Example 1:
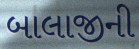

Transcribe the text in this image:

બાલાજીની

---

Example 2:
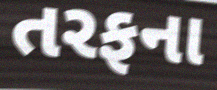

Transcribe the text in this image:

તરફના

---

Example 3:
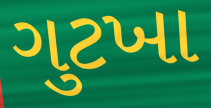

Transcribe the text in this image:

ગુટખા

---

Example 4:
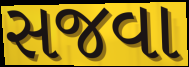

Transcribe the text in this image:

સજવા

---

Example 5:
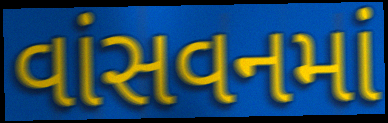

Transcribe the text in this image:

વાંસવનમાં